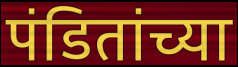
पंडितांच्या